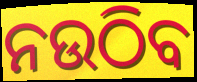
ନଉଠିବ